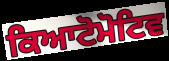
ਕਿਆਟੋਮੋਟਿਵ